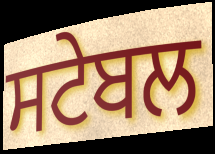
ਸਟੇਬਲ